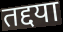
तद्दया